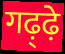
गढ़्ढ़े